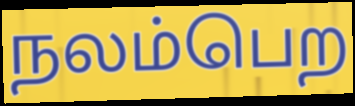
நலம்பெற